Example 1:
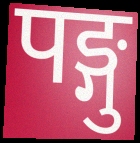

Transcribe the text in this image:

पङ्गु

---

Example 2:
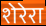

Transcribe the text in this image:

शेरेरा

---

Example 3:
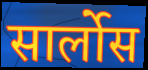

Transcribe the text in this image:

सार्लोस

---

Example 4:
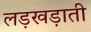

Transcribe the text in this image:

लड़खड़ाती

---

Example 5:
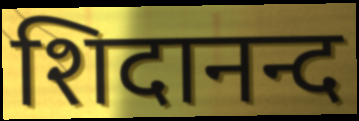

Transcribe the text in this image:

शिदानन्द